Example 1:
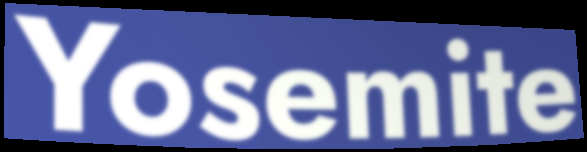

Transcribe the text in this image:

Yosemite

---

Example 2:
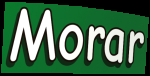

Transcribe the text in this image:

Morar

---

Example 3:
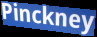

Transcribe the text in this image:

Pinckney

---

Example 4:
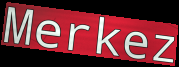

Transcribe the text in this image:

Merkez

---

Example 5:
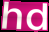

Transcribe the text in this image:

hd